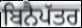
ਬਿਨੈਪੱਤਰ